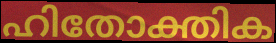
ഹിതോക്തിക